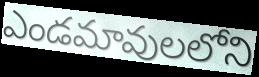
ఎండమావులలోని